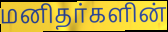
மனிதர்களின்